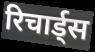
रिचार्ड्स